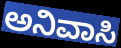
ಅನಿವಾಸಿ